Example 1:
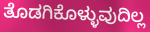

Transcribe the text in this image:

ತೊಡಗಿಕೊಳ್ಳುವುದಿಲ್ಲ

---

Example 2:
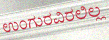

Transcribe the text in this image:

ಉಂಗುರವಿರಲಿಲ್ಲ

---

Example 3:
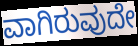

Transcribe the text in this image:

ವಾಗಿರುವುದೇ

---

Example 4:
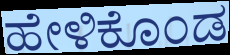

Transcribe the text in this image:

ಹೇಳಿಕೊಂಡ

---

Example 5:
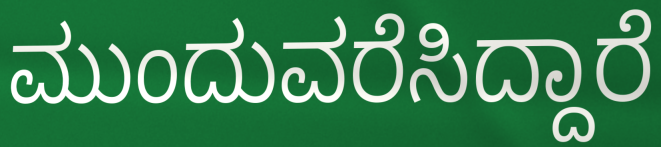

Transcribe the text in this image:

ಮುಂದುವರೆಸಿದ್ದಾರೆ